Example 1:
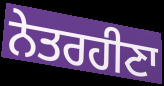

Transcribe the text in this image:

ਨੇਤਰਹੀਣਾ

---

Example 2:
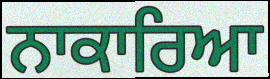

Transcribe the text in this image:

ਨਾਕਾਰਿਆ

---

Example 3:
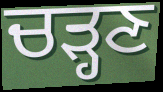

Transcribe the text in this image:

ਚੜ੍ਹਣ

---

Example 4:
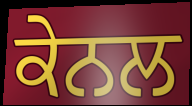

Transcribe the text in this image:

ਕੇਨਲ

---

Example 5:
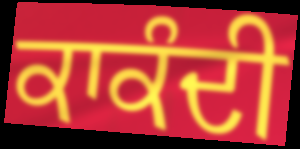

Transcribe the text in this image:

ਕਾਕੰਦੀ